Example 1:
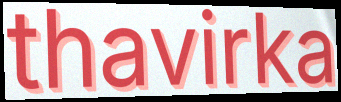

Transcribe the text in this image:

thavirka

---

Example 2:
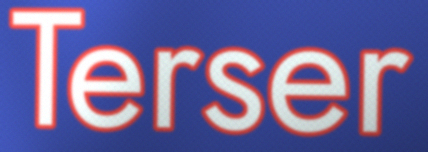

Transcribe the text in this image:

Terser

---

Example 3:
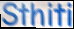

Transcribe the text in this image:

Sthiti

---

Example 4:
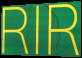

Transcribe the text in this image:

RIR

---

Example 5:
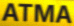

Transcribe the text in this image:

ATMA